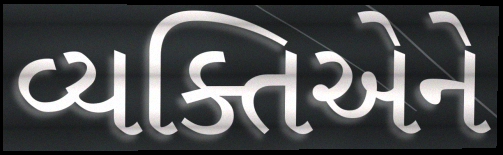
વ્યક્તિએને